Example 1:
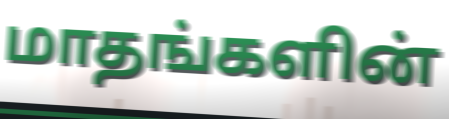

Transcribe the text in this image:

மாதங்களின்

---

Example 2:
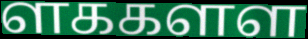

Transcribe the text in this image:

ளககளள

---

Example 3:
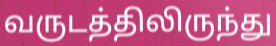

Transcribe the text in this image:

வருடத்திலிருந்து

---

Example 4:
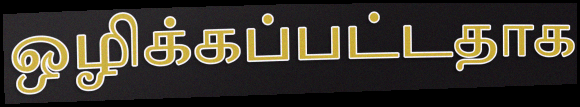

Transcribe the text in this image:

ஒழிக்கப்பட்டதாக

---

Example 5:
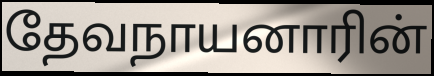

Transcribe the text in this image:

தேவநாயனாரின்